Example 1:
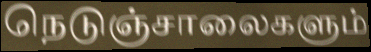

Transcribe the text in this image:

நெடுஞ்சாலைகளும்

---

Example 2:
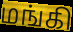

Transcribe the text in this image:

மங்கி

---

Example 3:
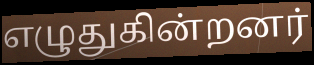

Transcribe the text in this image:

எழுதுகின்றனர்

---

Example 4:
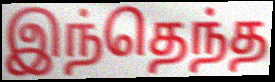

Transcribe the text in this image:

இந்தெந்த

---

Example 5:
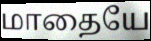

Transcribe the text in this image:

மாதையே